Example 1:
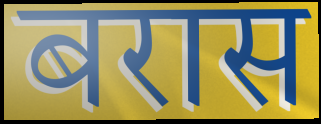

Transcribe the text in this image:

बरास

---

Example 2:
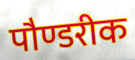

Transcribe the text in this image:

पौण्डरीक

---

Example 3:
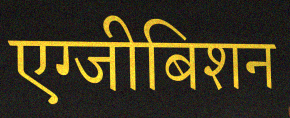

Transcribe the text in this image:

एग्जीबिशन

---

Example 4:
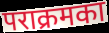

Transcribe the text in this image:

पराक्रमका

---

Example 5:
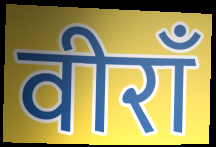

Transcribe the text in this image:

वीराँ